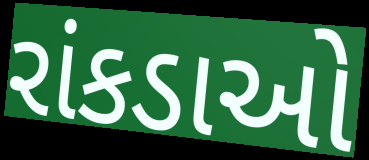
રાંકડાઓ